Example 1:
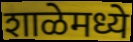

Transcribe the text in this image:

शाळेमध्ये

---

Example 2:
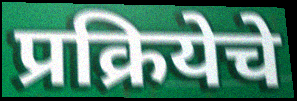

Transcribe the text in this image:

प्रक्रियेचे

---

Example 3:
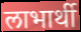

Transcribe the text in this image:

लाभार्थी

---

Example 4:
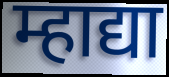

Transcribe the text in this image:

म्हाद्या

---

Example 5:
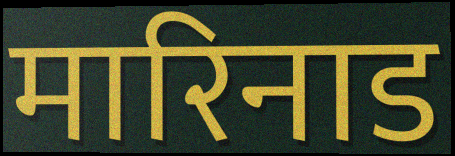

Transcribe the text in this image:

मारिनाड